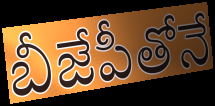
బీజేపీతోనే